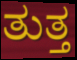
ತುತ್ತ